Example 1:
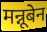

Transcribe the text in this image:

मन्नूबेन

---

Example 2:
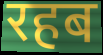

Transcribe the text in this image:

रहब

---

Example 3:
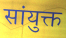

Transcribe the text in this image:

सांयुक्त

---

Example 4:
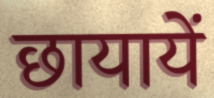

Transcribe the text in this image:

छायायें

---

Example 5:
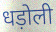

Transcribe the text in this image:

धड़ोली